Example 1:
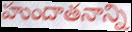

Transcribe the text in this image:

హుందాతనాన్ని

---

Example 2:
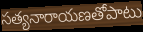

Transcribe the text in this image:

సత్యనారాయణతోపాటు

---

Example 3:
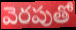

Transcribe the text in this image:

వెరపుతో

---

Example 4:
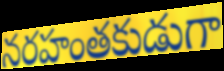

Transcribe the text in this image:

నరహంతకుడుగా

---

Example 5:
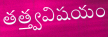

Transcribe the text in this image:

తత్త్వవిషయం